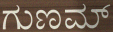
ಗುಣಮ್